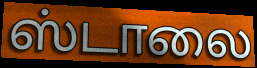
ஸ்டாலை